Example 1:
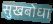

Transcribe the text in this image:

सुखबोधा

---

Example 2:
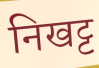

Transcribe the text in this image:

निखट्ट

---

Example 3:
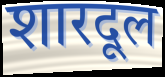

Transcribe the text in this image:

शारदूल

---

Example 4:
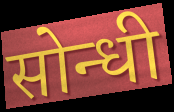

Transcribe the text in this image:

सोन्धी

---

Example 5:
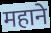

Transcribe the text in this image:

महाने